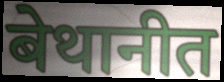
बेथानीत